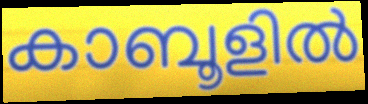
കാബൂളിൽ